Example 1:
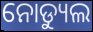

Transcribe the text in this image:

ନୋଡ୍ୟୁଲ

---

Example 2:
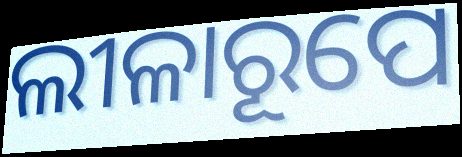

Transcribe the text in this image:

ଲୀଳାରୂପେ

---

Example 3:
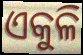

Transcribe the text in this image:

ଏକୁଳି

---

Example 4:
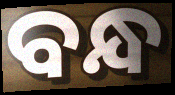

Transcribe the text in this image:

ବନ୍ଧ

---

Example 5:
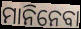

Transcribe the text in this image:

ମାନିନେବା